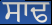
ਸਾਢ